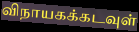
விநாயகக்கடவுள்